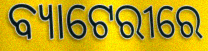
ବ୍ୟାଟେରୀରେ